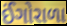
ઈંગોરાળા